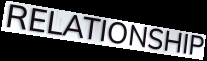
RELATIONSHIP